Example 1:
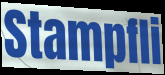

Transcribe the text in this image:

Stampfli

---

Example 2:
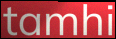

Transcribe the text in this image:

tamhi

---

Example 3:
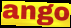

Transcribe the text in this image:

ango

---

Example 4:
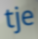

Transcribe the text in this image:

tje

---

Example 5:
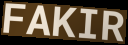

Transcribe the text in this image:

FAKIR